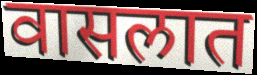
वासलात